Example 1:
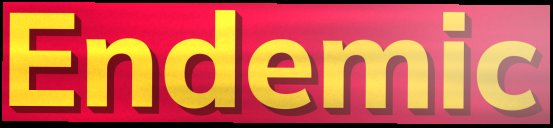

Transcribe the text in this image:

Endemic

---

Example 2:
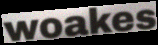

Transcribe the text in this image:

woakes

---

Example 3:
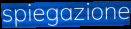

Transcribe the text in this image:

spiegazione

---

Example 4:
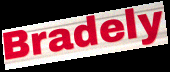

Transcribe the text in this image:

Bradely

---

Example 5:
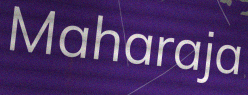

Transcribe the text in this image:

Maharaja